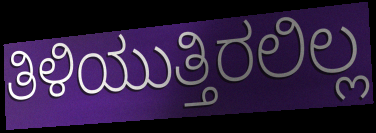
ತಿಳಿಯುತ್ತಿರಲಿಲ್ಲ